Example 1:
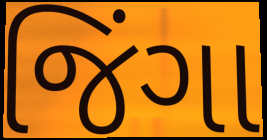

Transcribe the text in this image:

જિંગા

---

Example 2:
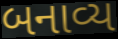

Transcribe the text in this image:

બનાવ્ય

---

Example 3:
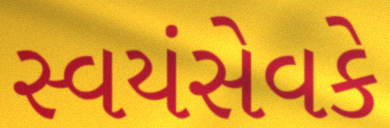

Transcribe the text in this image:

સ્વયંસેવકે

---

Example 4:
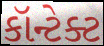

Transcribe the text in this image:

કૉન્ટેક્ટ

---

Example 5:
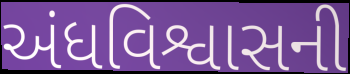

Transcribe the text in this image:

અંધવિશ્વાસની